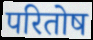
परितोष